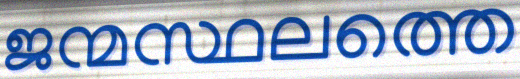
ജന്മസ്ഥലത്തെ